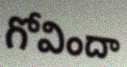
గోవిందా